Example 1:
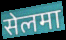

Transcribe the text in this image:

सेलमा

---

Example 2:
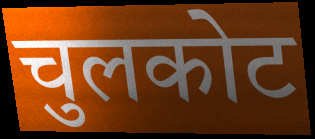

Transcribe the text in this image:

चुलकोट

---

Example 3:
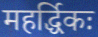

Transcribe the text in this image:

महर्द्धिकः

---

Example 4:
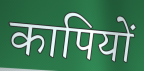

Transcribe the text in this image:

कापियों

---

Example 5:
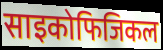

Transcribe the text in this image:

साइकोफिजिकल